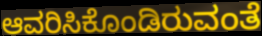
ಆವರಿಸಿಕೊಂಡಿರುವಂತೆ